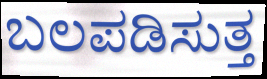
ಬಲಪಡಿಸುತ್ತ